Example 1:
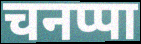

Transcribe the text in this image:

चनप्पा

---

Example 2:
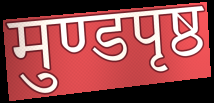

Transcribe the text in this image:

मुण्डपृष्ठ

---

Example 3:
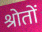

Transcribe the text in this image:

श्रोतों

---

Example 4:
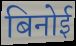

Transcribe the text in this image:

बिनोई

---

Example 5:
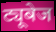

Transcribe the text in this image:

ट्यूबेज